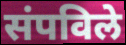
संपविले